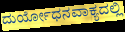
ದುರ್ಯೋಧನವಾಕ್ಯದಲ್ಲಿ